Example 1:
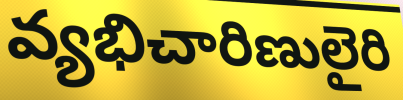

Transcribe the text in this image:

వ్యభిచారిణులైరి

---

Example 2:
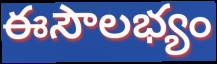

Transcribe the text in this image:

ఈసౌలభ్యం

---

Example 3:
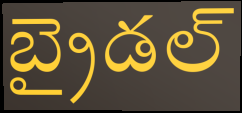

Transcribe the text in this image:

బ్రైడల్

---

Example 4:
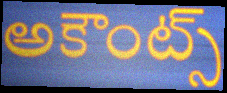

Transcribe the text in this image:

అకౌంట్స్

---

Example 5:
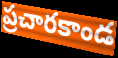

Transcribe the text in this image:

ప్రచారకాండ